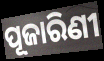
ପୂଜାରିଣୀ